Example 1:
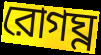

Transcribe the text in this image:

রোগঘ্ন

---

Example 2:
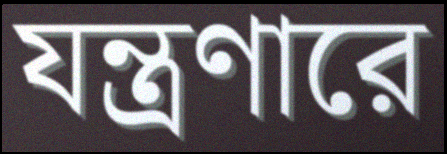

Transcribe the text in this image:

যন্ত্রণারে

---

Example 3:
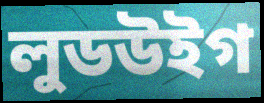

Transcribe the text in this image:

লুডউইগ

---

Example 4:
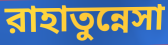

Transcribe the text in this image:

রাহাতুন্নেসা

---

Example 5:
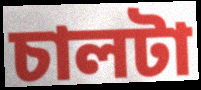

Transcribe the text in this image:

চালটা